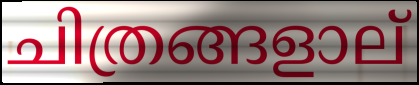
ചിത്രങ്ങളാല്